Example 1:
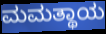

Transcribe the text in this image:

ಮಮತ್ಥಾಯ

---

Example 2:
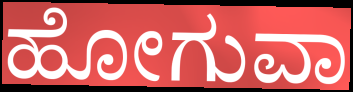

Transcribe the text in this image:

ಹೋಗುವಾ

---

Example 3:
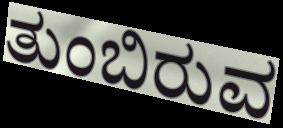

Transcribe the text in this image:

ತುಂಬಿರುವ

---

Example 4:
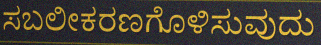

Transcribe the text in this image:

ಸಬಲೀಕರಣಗೊಳಿಸುವುದು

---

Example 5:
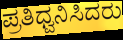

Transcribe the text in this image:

ಪ್ರತಿಧ್ವನಿಸಿದರು